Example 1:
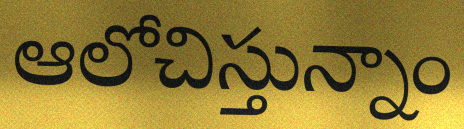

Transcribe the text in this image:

ఆలోచిస్తున్నాం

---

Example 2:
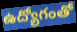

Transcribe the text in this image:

ఉద్యోగంతో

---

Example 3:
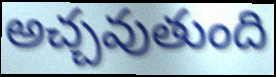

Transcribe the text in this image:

అచ్చవుతుంది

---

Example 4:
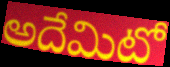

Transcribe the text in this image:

అదేమిటో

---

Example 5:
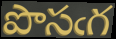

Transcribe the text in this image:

పొసఁగ